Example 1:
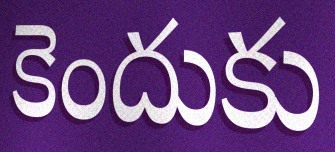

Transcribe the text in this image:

కెందుకు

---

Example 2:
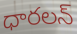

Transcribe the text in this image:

ధారలన్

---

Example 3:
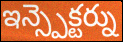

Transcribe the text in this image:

ఇన్స్పెక్టర్ను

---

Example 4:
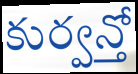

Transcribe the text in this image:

కుర్వన్తో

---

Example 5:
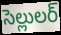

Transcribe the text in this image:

సెల్లులర్